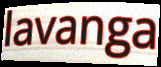
lavanga